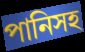
পানিসহ